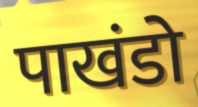
पाखंडो